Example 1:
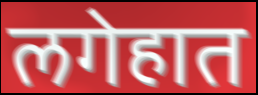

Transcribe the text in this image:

लगेहात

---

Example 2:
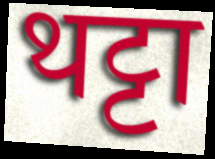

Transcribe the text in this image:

थट्टा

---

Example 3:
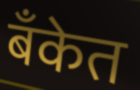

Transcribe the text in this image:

बॅंकेत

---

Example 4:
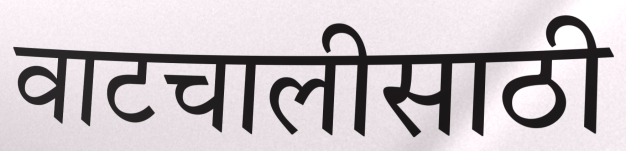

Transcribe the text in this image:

वाटचालीसाठी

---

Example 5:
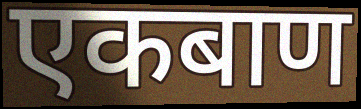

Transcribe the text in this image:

एकबाण